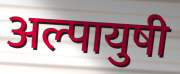
अल्पायुषी